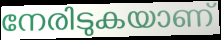
നേരിടുകയാണ്